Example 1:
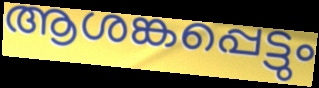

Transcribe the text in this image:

ആശങ്കപ്പെട്ടും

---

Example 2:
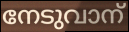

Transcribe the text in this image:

നേടുവാന്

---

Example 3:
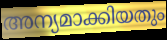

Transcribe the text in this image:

അന്യമാക്കിയതും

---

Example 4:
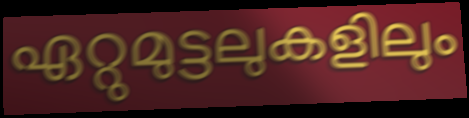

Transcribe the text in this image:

ഏറ്റുമുട്ടലുകളിലും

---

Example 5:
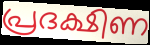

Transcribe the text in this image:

പ്രദക്ഷിണ